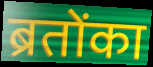
ब्रतोंका